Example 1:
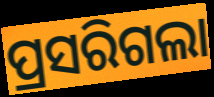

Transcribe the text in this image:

ପ୍ରସରିଗଲା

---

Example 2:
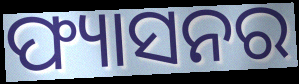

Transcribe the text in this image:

ଫ୍ୟାସନର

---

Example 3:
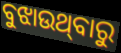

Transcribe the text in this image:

ବୁଝାଉଥ୍‌ବାରୁ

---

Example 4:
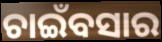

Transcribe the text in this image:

ଚାଇଁବସାର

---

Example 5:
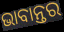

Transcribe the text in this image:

ଭାବାନ୍ତର